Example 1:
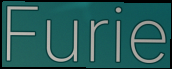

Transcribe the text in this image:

Furie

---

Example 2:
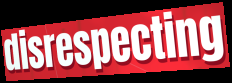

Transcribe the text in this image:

disrespecting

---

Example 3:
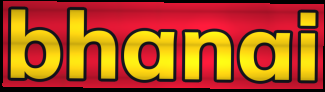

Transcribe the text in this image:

bhanai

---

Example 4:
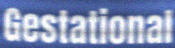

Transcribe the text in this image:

Gestational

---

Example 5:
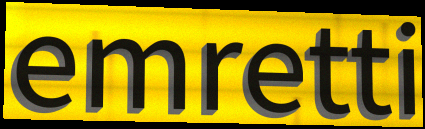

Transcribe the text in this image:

emretti